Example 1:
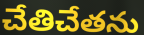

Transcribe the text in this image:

చేతిచేతను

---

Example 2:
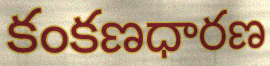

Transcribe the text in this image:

కంకణధారణ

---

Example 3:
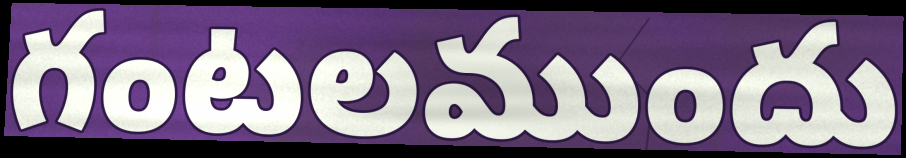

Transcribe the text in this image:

గంటలముందు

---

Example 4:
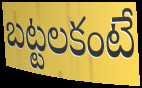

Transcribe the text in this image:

బట్టలకంటే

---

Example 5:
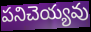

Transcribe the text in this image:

పనిచెయ్యవు